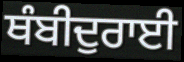
ਥੰਬੀਦੁਰਾਈ